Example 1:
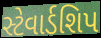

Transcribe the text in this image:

સ્ટેવાર્ડશિપ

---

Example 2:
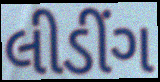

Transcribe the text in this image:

લીડીંગ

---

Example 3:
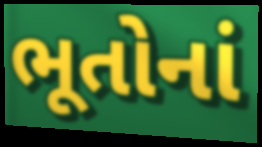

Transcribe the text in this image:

ભૂતોનાં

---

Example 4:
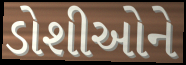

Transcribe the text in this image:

ડોશીઓને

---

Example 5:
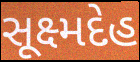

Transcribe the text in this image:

સૂક્ષ્મદેહ